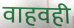
वाहवही